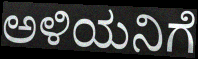
ಅಳಿಯನಿಗೆ